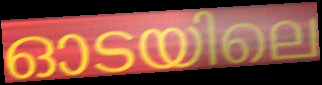
ഓടയിലെ